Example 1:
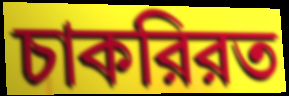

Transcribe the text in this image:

চাকরিরত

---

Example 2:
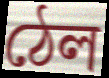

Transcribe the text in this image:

ঠেল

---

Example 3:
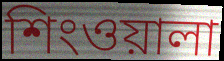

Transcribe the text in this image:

শিংওয়ালা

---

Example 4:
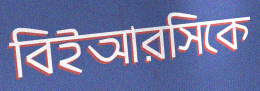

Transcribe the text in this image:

বিইআরসিকে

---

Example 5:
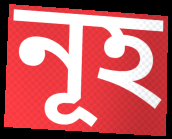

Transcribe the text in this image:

নূহ